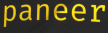
paneer